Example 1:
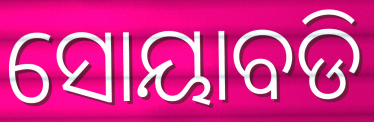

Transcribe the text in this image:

ସୋୟାବଡି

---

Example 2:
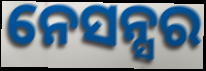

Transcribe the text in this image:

ନେସନ୍ସର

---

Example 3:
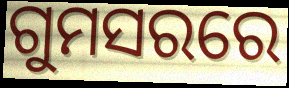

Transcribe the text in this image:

ଗୁମସରରେ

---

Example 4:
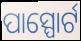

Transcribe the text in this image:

ପାସ୍ପୋର୍ଟ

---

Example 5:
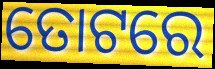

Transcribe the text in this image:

ତୋଟରେ